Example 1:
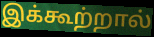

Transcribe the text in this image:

இக்கூற்றால்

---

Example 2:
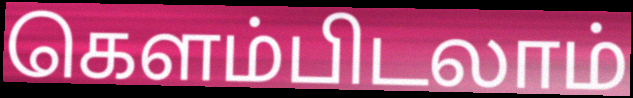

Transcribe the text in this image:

கெளம்பிடலாம்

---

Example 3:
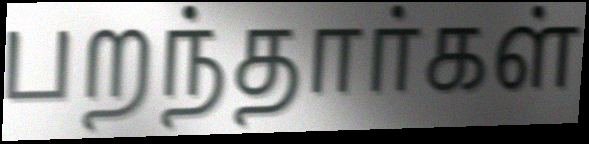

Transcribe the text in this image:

பறந்தார்கள்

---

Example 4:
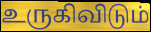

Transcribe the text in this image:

உருகிவிடும்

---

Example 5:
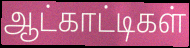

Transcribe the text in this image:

ஆட்காட்டிகள்